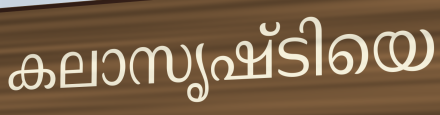
കലാസൃഷ്ടിയെ